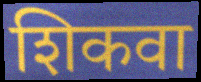
शिकवा